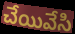
చేయివేసి